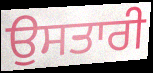
ਉਸਤਾਰੀ